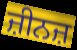
ਜ਼ੀਨਜ਼